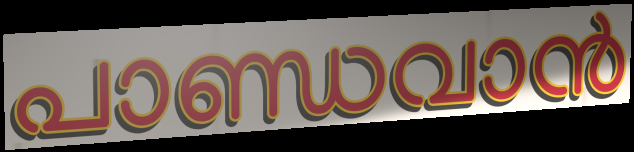
പാണ്ഡവാൻ